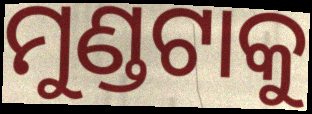
ମୁଣ୍ଡଟାକୁ